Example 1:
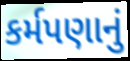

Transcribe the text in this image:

કર્મપણાનું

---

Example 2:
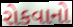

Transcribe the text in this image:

રોકવાનો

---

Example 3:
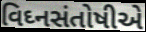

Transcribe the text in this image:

વિઘ્નસંતોષીએ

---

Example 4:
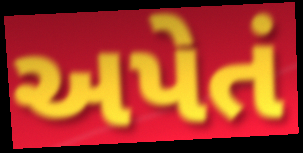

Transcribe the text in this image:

અપેતં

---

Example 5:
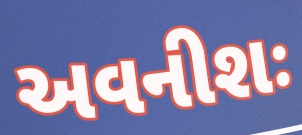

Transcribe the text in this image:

અવનીશઃ